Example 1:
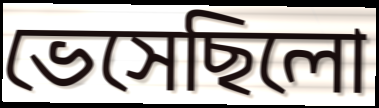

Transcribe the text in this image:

ভেসেছিলো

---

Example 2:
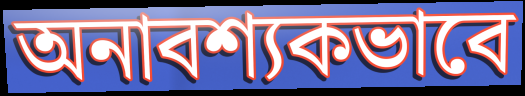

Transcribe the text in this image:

অনাবশ্যকভাবে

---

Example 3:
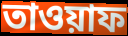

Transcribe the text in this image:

তাওয়াফ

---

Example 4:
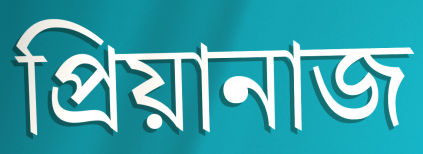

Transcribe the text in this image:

প্রিয়ানাজ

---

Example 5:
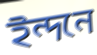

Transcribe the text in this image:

ইন্দনে